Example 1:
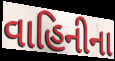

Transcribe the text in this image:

વાહિનીના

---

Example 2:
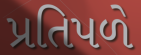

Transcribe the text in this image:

પ્રતિપળે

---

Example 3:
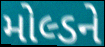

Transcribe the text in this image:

મોલ્ડને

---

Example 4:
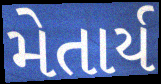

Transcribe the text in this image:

મેતાર્ય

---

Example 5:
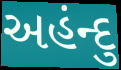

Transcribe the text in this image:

અહંન્દુ